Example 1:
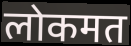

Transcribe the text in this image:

लोकमत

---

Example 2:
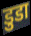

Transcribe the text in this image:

डुडा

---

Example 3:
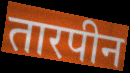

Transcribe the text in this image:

तारपीन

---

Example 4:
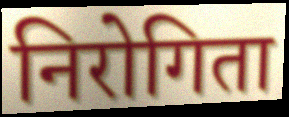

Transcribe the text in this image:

निरोगिता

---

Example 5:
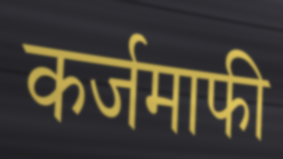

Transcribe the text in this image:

कर्जमाफी